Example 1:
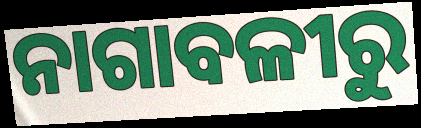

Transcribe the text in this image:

ନାଗାବଳୀରୁ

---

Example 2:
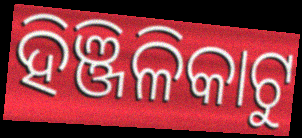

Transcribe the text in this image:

ହିଞ୍ଜିଳିକାଟୁ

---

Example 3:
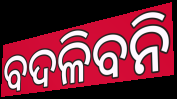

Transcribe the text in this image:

ବଦଳିବନି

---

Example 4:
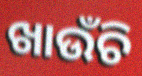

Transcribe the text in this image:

ଖାଉଁଚି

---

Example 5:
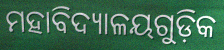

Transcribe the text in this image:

ମହାବିଦ୍ୟାଳୟଗୁଡ଼ିକ